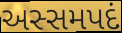
અસ્સમપદં